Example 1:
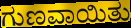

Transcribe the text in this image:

ಗುಣವಾಯಿತು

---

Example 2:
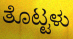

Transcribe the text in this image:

ತೊಟ್ಟಳು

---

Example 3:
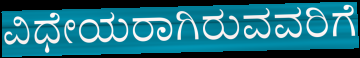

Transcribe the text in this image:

ವಿಧೇಯರಾಗಿರುವವರಿಗೆ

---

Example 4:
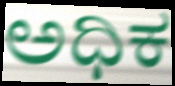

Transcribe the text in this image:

ಅಧಿಕ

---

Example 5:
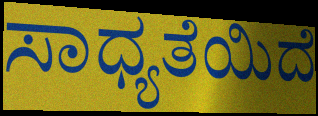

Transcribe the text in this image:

ಸಾಧ್ಯತೆಯಿದೆ